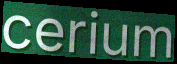
cerium